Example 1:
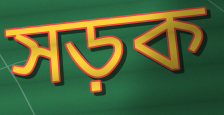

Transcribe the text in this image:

সড়ক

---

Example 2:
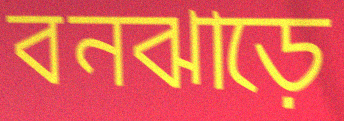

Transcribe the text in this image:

বনঝাড়ে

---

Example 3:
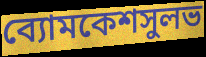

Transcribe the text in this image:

ব্যোমকেশসুলভ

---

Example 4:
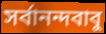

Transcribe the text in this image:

সর্বানন্দবাবু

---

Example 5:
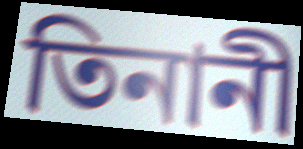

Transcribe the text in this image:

তিনানী